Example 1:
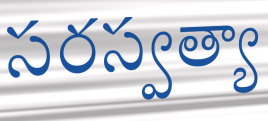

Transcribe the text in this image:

సరస్వత్యా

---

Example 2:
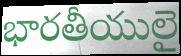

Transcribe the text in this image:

భారతీయులై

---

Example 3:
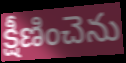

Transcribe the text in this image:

క్షీణించెను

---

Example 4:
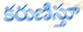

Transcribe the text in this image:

కరుణిస్తూ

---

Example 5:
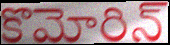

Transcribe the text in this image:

కొమోరిన్